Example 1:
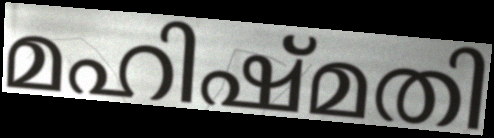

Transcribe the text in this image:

മഹിഷ്മതി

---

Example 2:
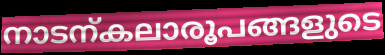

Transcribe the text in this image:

നാടന്കലാരൂപങ്ങളുടെ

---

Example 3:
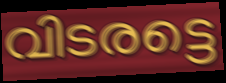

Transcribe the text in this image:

വിടരട്ടെ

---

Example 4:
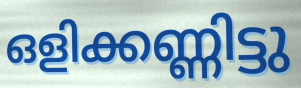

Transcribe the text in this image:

ഒളിക്കണ്ണിട്ടു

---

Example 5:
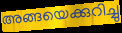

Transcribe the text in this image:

അങ്ങയെക്കുറിച്ചു